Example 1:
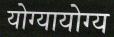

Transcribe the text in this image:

योग्यायोग्य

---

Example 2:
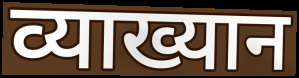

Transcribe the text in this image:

व्याख्यान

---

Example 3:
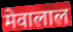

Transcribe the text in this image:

मेवालाल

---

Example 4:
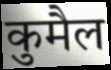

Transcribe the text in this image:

कुमैल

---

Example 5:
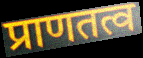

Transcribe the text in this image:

प्राणतत्व